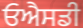
ਓਐਸਡੀ